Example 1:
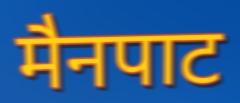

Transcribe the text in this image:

मैनपाट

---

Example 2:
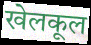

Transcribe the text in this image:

खेलकूल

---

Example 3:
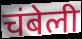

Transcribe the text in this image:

चंबेली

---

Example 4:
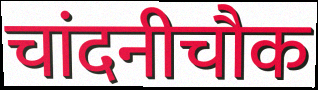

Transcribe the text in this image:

चांदनीचौक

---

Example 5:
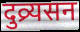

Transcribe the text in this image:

दुव्र्यसन